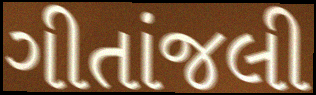
ગીતાંજલી